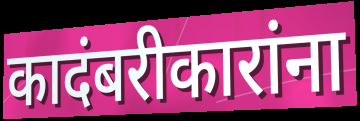
कादंबरीकारांना